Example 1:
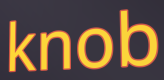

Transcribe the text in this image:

knob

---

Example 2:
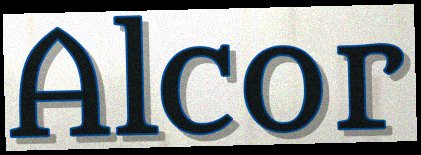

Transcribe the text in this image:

Alcor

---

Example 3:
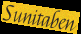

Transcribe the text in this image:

Sunitaben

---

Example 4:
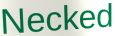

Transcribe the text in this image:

Necked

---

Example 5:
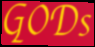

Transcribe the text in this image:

GODs